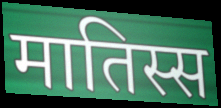
मातिस्स